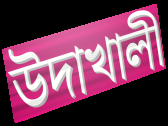
উদাখালী